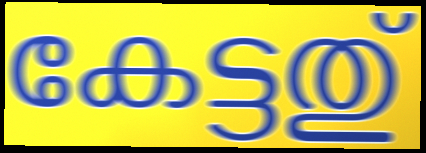
കേട്ടതു്